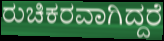
ರುಚಿಕರವಾಗಿದ್ದರೆ